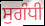
ਸੁਗੰਧੀ